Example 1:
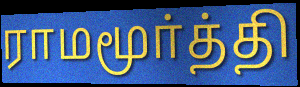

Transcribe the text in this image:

ராமமூர்த்தி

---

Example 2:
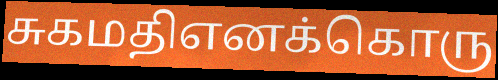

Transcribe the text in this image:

சுகமதிஎனக்கொரு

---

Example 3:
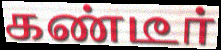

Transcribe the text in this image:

கண்டீர்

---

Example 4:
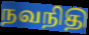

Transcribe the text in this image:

நவநிதி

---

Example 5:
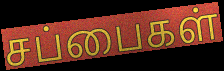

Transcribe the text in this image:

சப்பைகள்